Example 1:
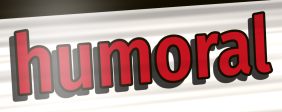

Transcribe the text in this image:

humoral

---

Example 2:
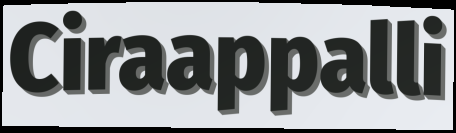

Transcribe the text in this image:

Ciraappalli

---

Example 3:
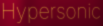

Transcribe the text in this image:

Hypersonic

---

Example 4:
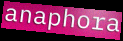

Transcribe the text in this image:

anaphora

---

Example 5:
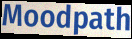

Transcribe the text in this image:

Moodpath